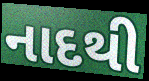
નાદથી